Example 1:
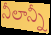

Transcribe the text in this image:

నీలాన్నీ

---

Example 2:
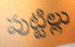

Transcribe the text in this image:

పుట్టిల్లు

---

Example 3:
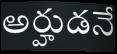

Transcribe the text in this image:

అర్హుడనే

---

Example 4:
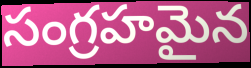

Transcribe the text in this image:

సంగ్రహమైన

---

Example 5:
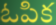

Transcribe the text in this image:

ఓపిక